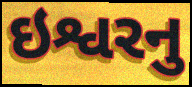
ઇશ્વરનુ